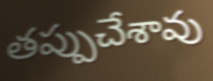
తప్పుచేశావు